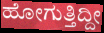
ಹೋಗುತ್ತಿದ್ದೀ